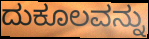
ದುಕೂಲವನ್ನು